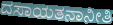
ದಸಾಯತನಾನೀತಿ